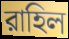
রাহিল